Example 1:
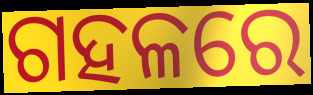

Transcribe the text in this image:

ଗହଳରେ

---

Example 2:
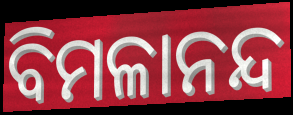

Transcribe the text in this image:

ବିମଳାନନ୍ଦ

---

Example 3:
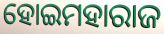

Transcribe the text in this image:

ହୋଇମହାରାଜ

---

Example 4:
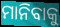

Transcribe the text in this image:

ମାନିବାକୁ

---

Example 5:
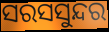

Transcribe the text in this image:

ସରସସୁନ୍ଦର